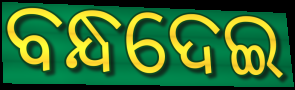
ବନ୍ଧଦେଇ